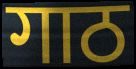
गाठ